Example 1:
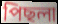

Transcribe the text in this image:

পিছলা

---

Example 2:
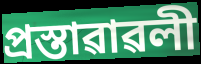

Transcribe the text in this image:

প্ৰস্তাৱাৱলী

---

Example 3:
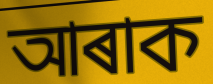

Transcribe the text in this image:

আৰাক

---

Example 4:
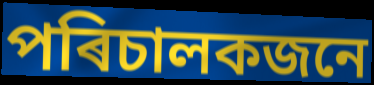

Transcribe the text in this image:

পৰিচালকজনে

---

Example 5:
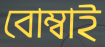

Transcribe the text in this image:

বোম্বাই